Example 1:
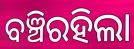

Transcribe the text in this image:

ବଞ୍ଚିରହିଲା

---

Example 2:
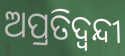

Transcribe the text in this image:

ଅପ୍ରତିଦ୍ବନ୍ଦୀ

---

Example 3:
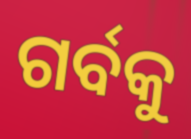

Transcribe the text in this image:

ଗର୍ବକୁ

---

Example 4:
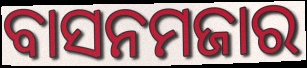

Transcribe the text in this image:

ବାସନମଜାର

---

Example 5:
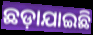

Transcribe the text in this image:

ଛଡ଼ାଯାଇଛି